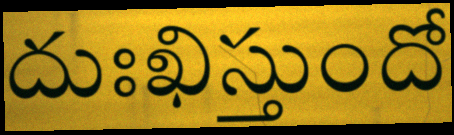
దుఃఖిస్తుందో